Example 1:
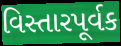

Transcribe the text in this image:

વિસ્તારપૂર્વક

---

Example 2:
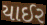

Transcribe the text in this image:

યાઈર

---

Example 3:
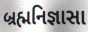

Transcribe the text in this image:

બ્રહ્મનિજ્ઞાસા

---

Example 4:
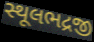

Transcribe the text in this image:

સ્થૂલભદ્રજી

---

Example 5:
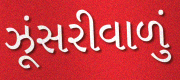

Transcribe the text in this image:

ઝૂંસરીવાળું